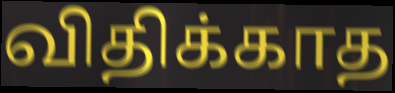
விதிக்காத